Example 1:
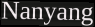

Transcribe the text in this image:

Nanyang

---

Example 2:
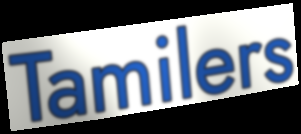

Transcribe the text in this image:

Tamilers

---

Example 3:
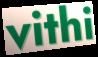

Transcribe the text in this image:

vithi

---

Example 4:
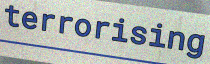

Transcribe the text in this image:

terrorising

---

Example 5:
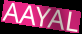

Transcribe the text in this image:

AAYAL